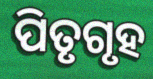
ପିତୃଗୃହ